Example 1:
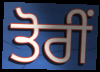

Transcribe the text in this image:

ਤੋਰੀਂ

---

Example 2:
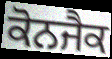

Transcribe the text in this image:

ਕੋਨਜੈਕ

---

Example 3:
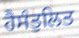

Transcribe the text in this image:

ਹੈਸੰਤੁਲਿਤ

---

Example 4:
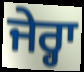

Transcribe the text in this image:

ਜੇਰ੍ਹਾ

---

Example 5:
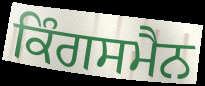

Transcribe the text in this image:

ਕਿੰਗਸਮੈਨ